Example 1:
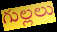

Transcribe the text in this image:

గుల్లలు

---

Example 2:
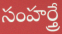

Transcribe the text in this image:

సంహర్త్రే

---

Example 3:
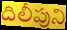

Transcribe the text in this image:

దిలీపుని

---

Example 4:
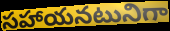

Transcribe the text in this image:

సహాయనటునిగా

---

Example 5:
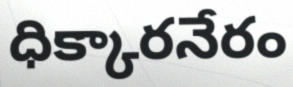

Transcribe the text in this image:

ధిక్కారనేరం